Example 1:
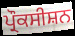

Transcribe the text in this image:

ਪ੍ਰੌਕਸੀਸ਼ਨ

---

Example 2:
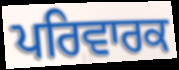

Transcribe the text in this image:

ਪਰਿਵਾਰਕ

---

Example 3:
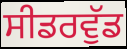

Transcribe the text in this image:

ਸੀਡਰਵੁੱਡ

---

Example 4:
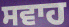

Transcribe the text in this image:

ਸਵਾਹ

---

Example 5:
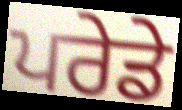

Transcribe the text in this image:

ਪਰੇਡੇ